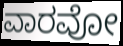
ವಾರವೋ